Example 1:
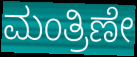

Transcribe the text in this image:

ಮಂತ್ರಿಣೇ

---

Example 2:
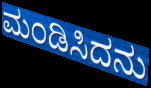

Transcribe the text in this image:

ಮಂಡಿಸಿದನು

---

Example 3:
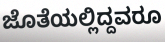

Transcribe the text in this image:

ಜೊತೆಯಲ್ಲಿದ್ದವರೂ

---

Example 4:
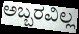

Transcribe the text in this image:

ಅಬ್ಬರವಿಲ್ಲ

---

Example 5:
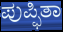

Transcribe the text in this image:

ಪುಪ್ಫಿತಾ